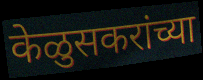
केळुसकरांच्या